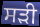
ਸੜੀ